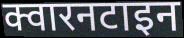
क्वारनटाइन